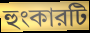
হুংকারটি